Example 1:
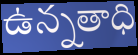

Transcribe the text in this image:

ఉన్నతాధి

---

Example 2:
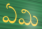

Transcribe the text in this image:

ఏమి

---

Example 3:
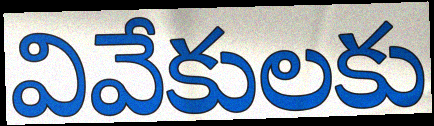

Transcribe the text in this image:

వివేకులకు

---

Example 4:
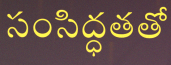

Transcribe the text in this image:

సంసిద్ధతతో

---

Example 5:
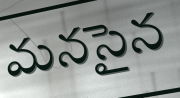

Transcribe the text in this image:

మనసైన